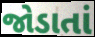
જોડાતાં